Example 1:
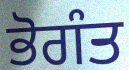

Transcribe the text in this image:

ਭੋਗੰਤ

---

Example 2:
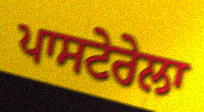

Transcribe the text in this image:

ਪਾਸਟੇਰੇਲਾ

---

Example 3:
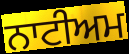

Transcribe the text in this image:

ਨਾਟੀਅਮ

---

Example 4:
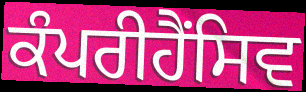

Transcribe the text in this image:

ਕੰਪਰੀਹੈਂਸਿਵ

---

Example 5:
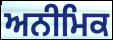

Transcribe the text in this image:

ਅਨੀਮਿਕ